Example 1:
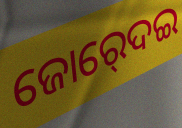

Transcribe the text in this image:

ଜୋର୍‍ଦେଇ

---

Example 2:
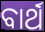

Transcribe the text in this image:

ବାର୍ଥ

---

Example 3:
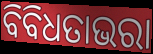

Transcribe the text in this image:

ବିବିଧତାଭରା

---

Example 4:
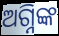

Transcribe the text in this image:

ଅଗ୍ନିଙ୍କ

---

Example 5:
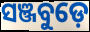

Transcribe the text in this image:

ସଞ୍ଜବୁଡ଼େ